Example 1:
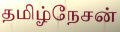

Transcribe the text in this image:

தமிழ்நேசன்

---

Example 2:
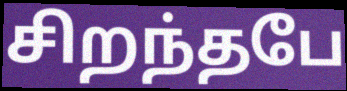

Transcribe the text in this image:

சிறந்தபே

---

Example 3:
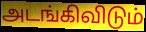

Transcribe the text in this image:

அடங்கிவிடும்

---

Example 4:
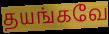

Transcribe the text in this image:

தயங்கவே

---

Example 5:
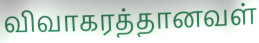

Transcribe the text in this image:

விவாகரத்தானவள்